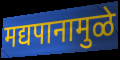
मद्यपानामुळे